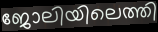
ജോലിയിലെത്തി